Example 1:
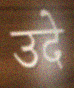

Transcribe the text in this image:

उदे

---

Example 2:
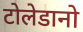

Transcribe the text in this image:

टोलेडानो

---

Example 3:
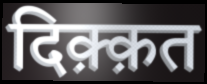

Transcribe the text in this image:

दिक़्क़त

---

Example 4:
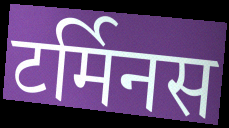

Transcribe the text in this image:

टर्मिनस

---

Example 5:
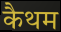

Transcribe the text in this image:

कैथम